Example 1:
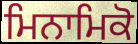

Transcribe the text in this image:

ਮਿਨਾਮਿਕੋ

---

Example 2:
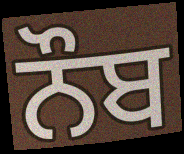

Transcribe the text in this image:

ਨੌਬ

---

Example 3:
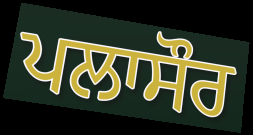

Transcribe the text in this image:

ਪਲਾਸੌਰ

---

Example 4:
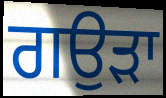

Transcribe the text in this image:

ਗਉੜਾ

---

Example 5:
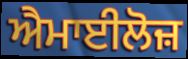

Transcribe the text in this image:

ਐਮਾਈਲੋਜ਼